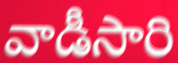
వాడీసారి